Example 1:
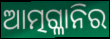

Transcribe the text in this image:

ଆତ୍ମଗ୍ଳାନିର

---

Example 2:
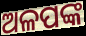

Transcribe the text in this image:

ଅଳପଙ୍କ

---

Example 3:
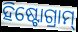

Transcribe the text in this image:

ହିଷ୍ଟୋଗ୍ରାମ୍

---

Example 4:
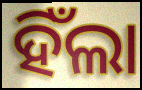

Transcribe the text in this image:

ହିଁଲା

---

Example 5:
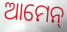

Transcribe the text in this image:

ଆମେନ୍